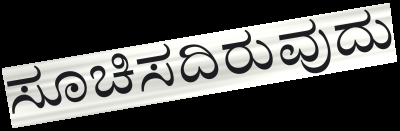
ಸೂಚಿಸದಿರುವುದು